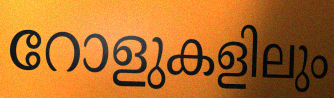
റോളുകളിലും